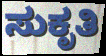
ಸುಕೃತಿ